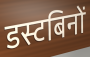
डस्टबिनों